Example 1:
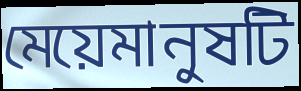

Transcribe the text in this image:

মেয়েমানুষটি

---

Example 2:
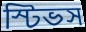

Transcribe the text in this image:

স্টিভস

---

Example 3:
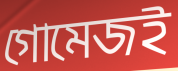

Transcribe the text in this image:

গোমেজই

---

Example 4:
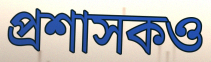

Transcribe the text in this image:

প্রশাসকও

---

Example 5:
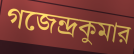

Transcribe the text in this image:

গজেন্দ্রকুমার